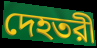
দেহতরী